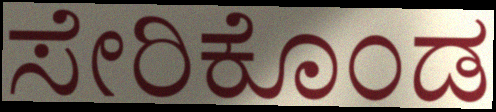
ಸೇರಿಕೊಂಡ